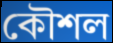
কৌশল